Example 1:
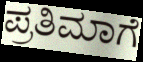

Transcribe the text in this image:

ಪ್ರತಿಮಾಗೆ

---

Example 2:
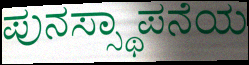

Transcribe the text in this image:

ಪುನಸ್ಸ್ಥಾಪನೆಯ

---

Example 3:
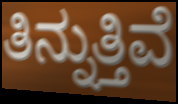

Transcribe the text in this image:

ತಿನ್ನುತ್ತಿವೆ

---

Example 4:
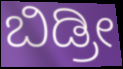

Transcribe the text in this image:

ಬಿಡ್ರೀ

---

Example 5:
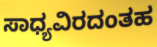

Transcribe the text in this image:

ಸಾಧ್ಯವಿರದಂತಹ